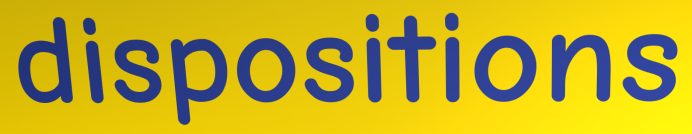
dispositions